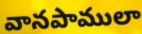
వానపాములా